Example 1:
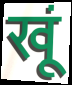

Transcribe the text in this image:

खूं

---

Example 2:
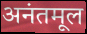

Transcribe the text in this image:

अनंतमूल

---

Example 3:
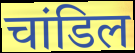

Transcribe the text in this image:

चांडिल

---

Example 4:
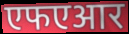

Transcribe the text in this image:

एफएआर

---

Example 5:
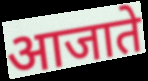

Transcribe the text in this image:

आजाते